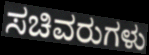
ಸಚಿವರುಗಳು